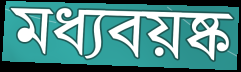
মধ্যবয়ষ্ক